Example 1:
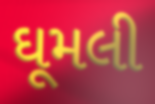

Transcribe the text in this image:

ઘૂમલી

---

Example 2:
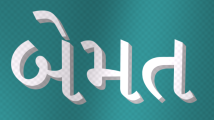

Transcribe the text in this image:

બેમત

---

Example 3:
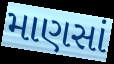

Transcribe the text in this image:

માણસાં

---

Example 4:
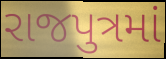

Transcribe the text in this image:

રાજપુત્રમાં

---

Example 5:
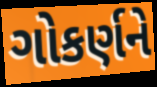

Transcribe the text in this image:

ગોકર્ણને